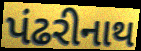
પંઢરીનાથ